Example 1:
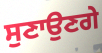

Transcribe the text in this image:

ਸੁਣਾਉਣਗੇ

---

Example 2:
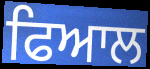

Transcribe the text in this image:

ਫਿਆਲ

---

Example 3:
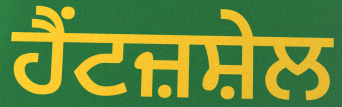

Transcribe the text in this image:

ਹੈਂਟਜ਼ਸ਼ੇਲ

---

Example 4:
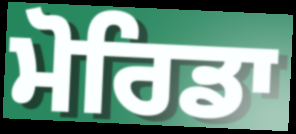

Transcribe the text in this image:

ਮੋਰਿਡਾ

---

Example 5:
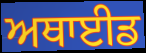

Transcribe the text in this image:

ਅਥਾਈਡ